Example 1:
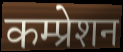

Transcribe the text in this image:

कम्प्रेशन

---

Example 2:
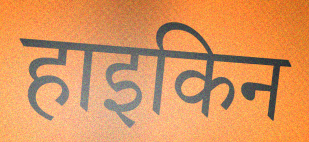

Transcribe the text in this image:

हाइकिन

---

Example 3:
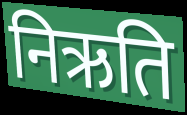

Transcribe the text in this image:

निऋति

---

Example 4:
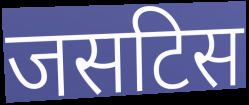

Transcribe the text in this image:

जसटिस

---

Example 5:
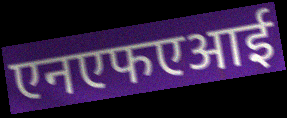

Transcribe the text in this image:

एनएफएआई